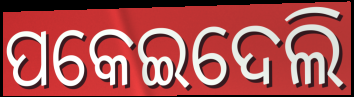
ପକେଇଦେଲି